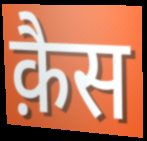
क़ैस